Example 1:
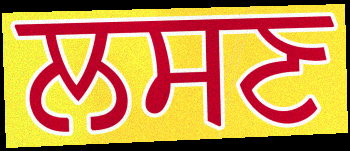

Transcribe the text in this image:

ਲਸਣ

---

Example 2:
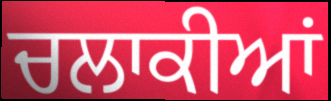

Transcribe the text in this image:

ਚਲਾਕੀਆਂ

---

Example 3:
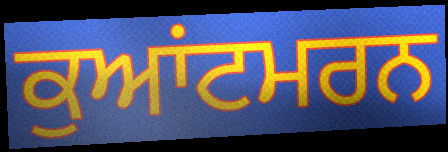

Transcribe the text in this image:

ਕੁਆਂਟਮਰਨ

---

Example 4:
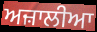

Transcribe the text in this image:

ਅਜ਼ਾਲੀਆ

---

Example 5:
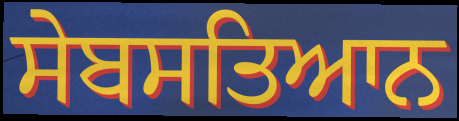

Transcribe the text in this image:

ਸੇਬਸਤਿਆਨ